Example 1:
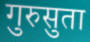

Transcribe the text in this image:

गुरुसुता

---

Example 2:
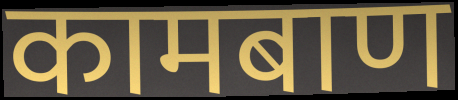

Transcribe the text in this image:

कामबाण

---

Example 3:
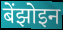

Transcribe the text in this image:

बेंझोइन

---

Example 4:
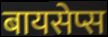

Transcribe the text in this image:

बायसेप्स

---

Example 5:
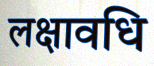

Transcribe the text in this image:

लक्षावधि